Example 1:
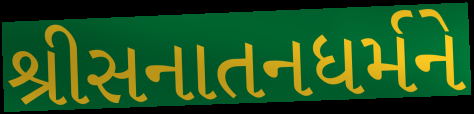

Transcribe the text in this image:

શ્રીસનાતનધર્મને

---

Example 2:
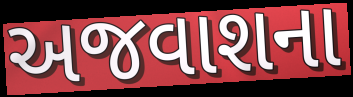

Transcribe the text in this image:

અજવાશના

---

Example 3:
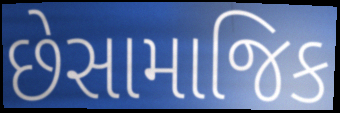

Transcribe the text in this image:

છેસામાજિક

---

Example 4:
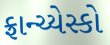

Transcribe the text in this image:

ફ્રાન્ચ્યેસ્કો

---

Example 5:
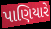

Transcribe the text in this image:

પાણિયારે